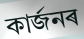
কাৰ্জনৰ